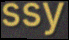
ssy